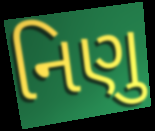
નિણુ